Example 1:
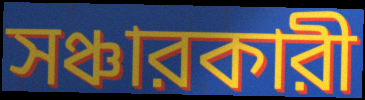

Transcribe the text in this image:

সঞ্চারকারী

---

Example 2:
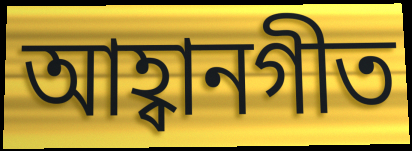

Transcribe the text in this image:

আহ্বানগীত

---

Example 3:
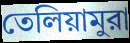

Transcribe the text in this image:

তেলিয়ামুরা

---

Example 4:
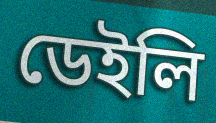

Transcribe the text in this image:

ডেইলি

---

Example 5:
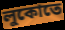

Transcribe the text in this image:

লুকোতে